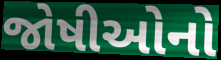
જોષીઓનો